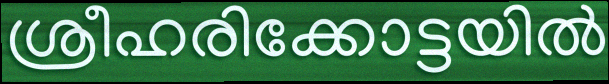
ശ്രീഹരിക്കോട്ടയിൽ